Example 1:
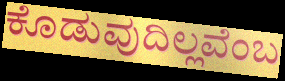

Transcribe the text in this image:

ಕೊಡುವುದಿಲ್ಲವೆಂಬ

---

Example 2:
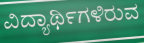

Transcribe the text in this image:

ವಿದ್ಯಾರ್ಥಿಗಳಿರುವ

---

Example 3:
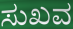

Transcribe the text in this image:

ಸುಖವ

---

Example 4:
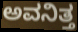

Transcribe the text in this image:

ಅವನಿತ್ತ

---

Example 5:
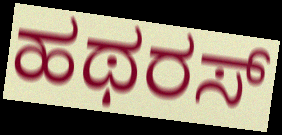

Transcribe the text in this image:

ಹಥರಸ್